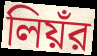
লিয়ঁর